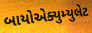
બાયોએક્યુમ્યુલેટ